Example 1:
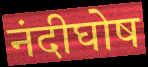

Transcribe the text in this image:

नंदीघोष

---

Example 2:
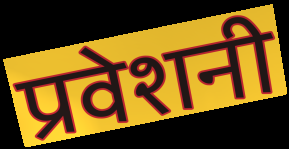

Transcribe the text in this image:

प्रवेशनी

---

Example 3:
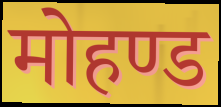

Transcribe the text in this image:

मोहण्ड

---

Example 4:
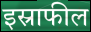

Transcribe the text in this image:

इस्राफील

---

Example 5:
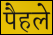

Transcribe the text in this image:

पैहले